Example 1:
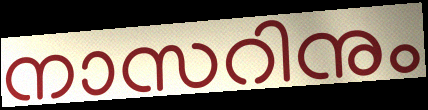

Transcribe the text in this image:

നാസറിനും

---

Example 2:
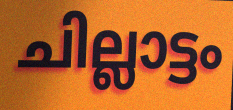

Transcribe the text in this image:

ചില്ലാട്ടം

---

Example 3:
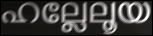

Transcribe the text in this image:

ഹല്ലേലൂയ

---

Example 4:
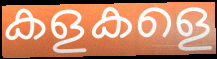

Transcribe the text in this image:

കളകളെ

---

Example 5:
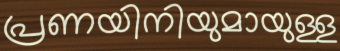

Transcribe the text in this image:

പ്രണയിനിയുമായുള്ള